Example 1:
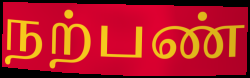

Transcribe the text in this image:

நற்பண்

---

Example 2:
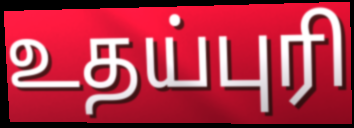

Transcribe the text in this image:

உதய்புரி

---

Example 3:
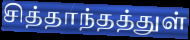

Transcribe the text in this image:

சித்தாந்தத்துள்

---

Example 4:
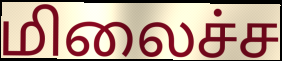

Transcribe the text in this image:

மிலைச்ச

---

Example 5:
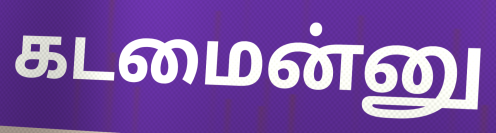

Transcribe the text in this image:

கடமைன்னு